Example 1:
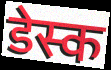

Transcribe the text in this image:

डेस्क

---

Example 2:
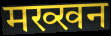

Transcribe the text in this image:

मख्खन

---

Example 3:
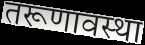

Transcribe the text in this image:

तरूणावस्था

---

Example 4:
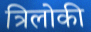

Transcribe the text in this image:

त्रिलोकी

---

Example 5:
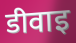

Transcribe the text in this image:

डीवाइ